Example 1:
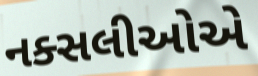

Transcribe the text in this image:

નક્સલીઓએ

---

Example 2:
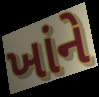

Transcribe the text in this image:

ખાંને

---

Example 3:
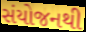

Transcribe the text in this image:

સંયોજનથી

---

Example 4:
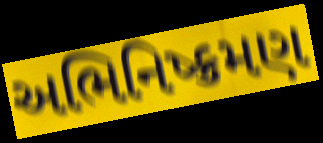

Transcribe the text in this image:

અભિનિષ્ક્રમણ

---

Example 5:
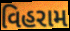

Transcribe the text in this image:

વિહરામ